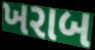
ખરાબ